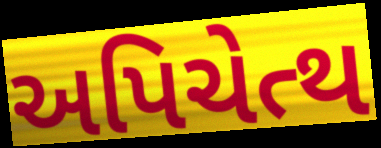
અપિચેત્થ